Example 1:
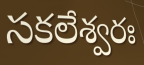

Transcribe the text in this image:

సకలేశ్వరః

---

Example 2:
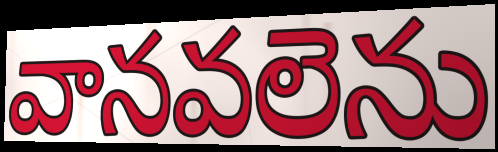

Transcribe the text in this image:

వానవలెను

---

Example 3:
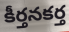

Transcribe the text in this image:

కీర్తనకర్త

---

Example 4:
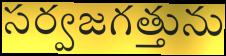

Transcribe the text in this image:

సర్వజగత్తును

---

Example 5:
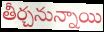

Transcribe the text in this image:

తీర్చనున్నాయి